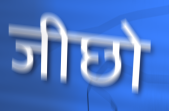
जीछो